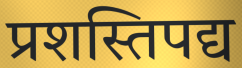
प्रशस्तिपद्य